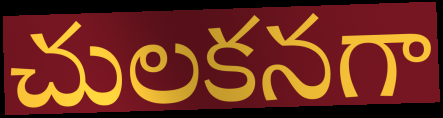
చులకనగా